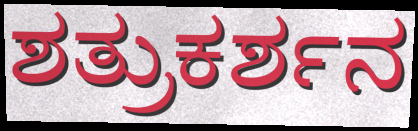
ಶತ್ರುಕರ್ಶನ